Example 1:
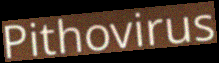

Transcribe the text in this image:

Pithovirus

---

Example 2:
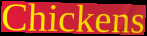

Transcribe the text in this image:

Chickens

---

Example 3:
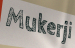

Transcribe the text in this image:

Mukerji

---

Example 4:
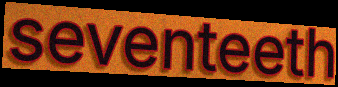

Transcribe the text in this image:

seventeeth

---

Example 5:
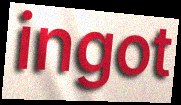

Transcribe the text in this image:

ingot